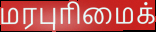
மரபுரிமைக்